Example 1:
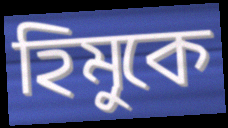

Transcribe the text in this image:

হিমুকে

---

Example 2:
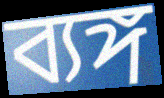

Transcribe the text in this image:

ব্যঙ্গ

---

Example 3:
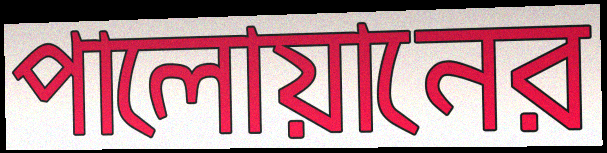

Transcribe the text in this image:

পালোয়ানের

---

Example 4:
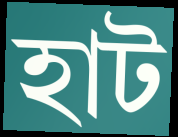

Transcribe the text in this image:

হাট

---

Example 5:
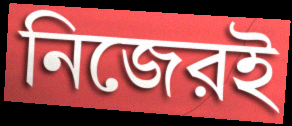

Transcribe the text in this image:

নিজেরই